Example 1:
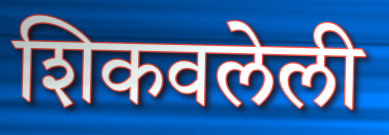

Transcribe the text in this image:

शिकवलेली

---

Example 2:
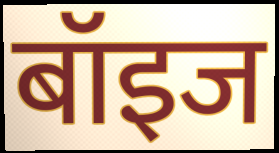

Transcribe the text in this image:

बॉइज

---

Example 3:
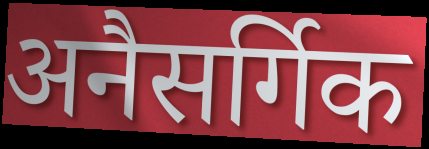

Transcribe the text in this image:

अनैसर्गिक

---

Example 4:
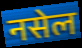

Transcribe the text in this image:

नसेल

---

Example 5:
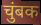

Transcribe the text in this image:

चुंबक